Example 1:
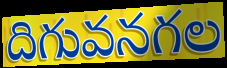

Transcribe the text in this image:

దిగువనగల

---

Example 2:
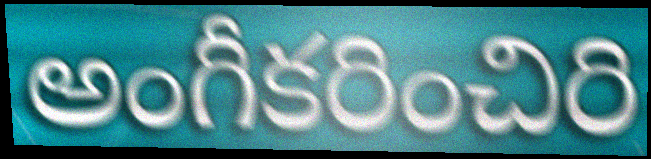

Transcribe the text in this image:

అంగీకరించిరి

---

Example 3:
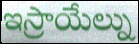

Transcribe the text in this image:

ఇస్రాయేల్ను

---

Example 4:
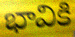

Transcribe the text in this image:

భావికి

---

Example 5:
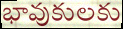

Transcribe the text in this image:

భావుకులకు